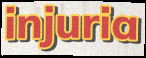
injuria